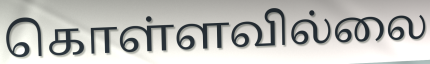
கொள்ளவில்லை